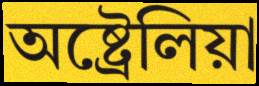
অষ্ট্ৰেলিয়া